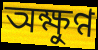
অক্ষুণ্ণ